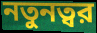
নতুনত্বর